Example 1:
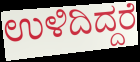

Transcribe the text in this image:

ಉಳಿದಿದ್ದರೆ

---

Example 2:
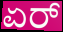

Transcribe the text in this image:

ಏರ್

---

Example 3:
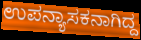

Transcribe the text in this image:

ಉಪನ್ಯಾಸಕನಾಗಿದ್ದ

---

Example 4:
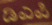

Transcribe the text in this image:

ಡಿಎಪಿ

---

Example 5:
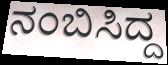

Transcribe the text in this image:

ನಂಬಿಸಿದ್ದ